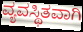
ವ್ಯವಸ್ಥಿತವಾಗಿ